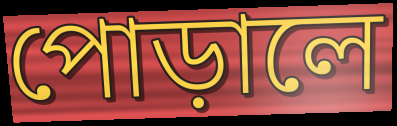
পোড়ালে